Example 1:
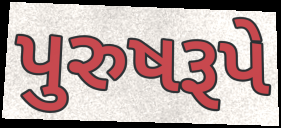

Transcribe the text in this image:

પુરુષરૂપે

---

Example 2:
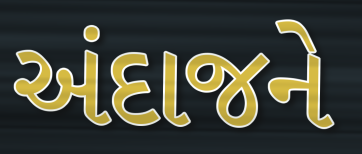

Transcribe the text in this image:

અંદાજને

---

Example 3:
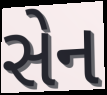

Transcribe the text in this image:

સેન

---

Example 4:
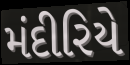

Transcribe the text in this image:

મંદીરિયે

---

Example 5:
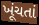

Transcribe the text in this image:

ખૂંચતાં